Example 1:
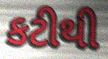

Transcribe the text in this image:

કટીથી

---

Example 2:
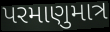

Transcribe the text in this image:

પરમાણુમાત્ર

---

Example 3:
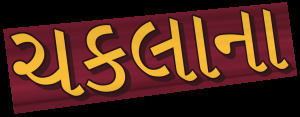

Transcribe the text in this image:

ચકલાના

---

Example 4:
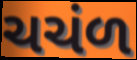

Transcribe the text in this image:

ચચંળ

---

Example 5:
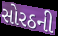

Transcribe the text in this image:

સોરઠની